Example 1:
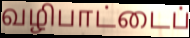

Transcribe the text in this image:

வழிபாட்டைப்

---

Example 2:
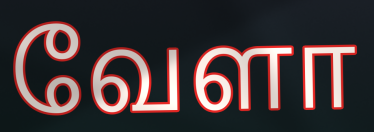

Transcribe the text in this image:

வேளா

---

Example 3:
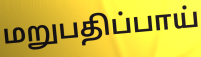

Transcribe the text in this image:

மறுபதிப்பாய்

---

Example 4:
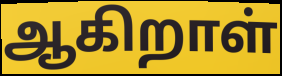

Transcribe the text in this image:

ஆகிறாள்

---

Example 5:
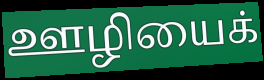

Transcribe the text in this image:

ஊழியைக்